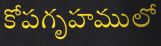
కోపగృహములో